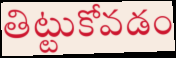
తిట్టుకోవడం